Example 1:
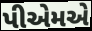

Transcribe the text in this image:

પીએમએ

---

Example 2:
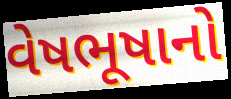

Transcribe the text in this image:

વેષભૂષાનો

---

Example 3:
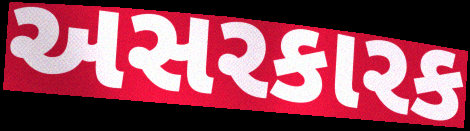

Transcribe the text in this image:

અસરકારક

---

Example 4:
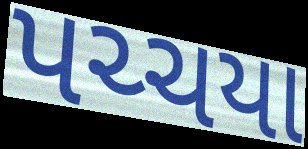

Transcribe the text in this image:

પચ્ચયા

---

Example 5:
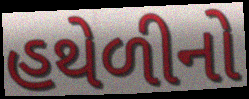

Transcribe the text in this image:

હથેળીનો